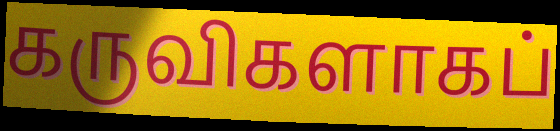
கருவிகளாகப்